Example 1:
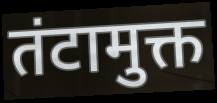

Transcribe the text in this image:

तंटामुक्त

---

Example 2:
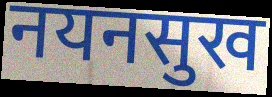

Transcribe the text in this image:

नयनसुख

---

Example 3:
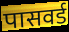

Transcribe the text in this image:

पासवर्ड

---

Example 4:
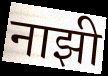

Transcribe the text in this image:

नाझी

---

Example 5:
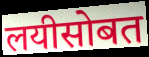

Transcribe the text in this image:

लयीसोबत